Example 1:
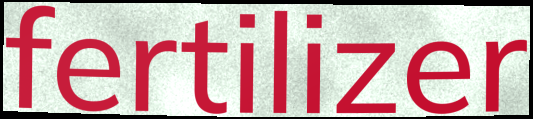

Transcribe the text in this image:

fertilizer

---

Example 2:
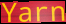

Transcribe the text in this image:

Yarn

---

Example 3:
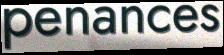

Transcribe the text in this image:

penances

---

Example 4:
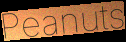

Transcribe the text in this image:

Peanuts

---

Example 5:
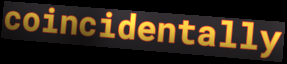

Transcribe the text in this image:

coincidentally